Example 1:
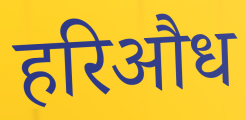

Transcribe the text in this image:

हरिऔध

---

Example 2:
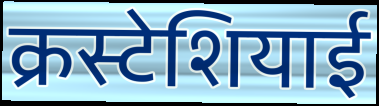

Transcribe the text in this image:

क्रस्टेशियाई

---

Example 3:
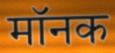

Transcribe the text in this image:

मॉनक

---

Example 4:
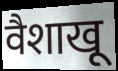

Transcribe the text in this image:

वैशाखू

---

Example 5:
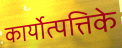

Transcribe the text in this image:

कार्योत्पत्तिके